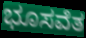
ಭೂಸವೆತ